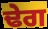
ਢੇਗ